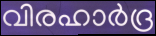
വിരഹാർദ്ര